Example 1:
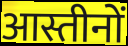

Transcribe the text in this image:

आस्तीनों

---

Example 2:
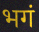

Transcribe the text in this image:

भगं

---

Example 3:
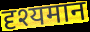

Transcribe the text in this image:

दृश्यमान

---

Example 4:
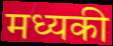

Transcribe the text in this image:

मध्यकी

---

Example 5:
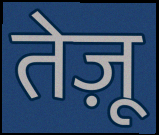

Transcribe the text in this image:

तेज़ू